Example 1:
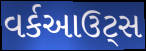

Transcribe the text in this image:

વર્કઆઉટ્સ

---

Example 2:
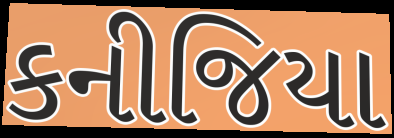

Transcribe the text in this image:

કનીજિયા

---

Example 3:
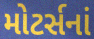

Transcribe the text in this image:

મોટર્સનાં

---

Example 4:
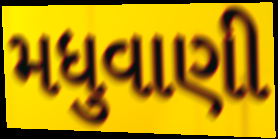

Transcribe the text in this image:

મધુવાણી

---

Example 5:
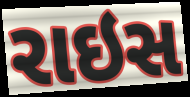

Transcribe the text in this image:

રાઇસ